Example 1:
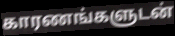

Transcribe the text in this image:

காரணங்களுடன்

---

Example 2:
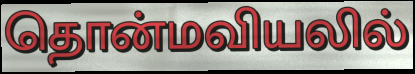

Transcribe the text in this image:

தொன்மவியலில்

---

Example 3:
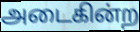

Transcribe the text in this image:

அடைகின்ற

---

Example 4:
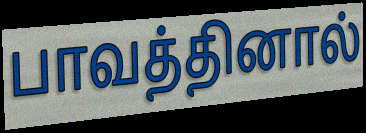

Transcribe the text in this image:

பாவத்தினால்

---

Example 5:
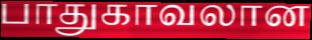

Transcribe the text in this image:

பாதுகாவலான